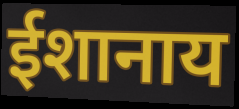
ईशानाय